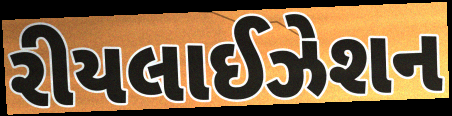
રીયલાઈઝેશન